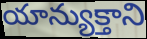
యాన్యుక్తాని